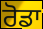
ਰੋਡਾ